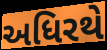
અધિરથે